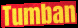
Tumban